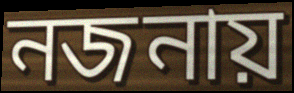
নজনায়